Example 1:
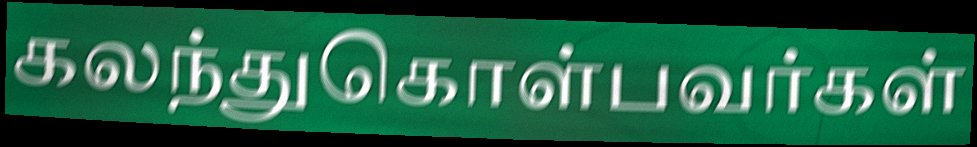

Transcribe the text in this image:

கலந்துகொள்பவர்கள்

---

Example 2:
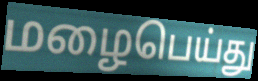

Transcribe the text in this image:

மழைபெய்து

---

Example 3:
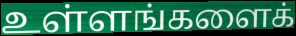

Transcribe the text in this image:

உள்ளங்களைக்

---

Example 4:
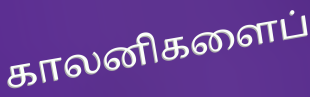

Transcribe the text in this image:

காலனிகளைப்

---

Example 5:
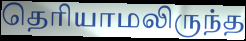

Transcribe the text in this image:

தெரியாமலிருந்த